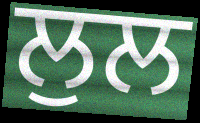
ਲੁਲ